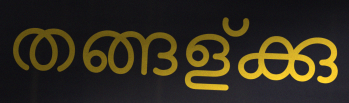
തങ്ങള്ക്കു